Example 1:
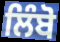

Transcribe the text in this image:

ਲਿੰਬੋ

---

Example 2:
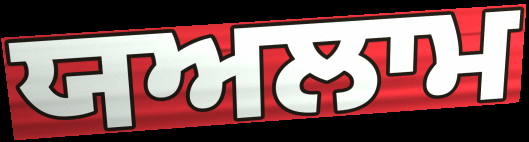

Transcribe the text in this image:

ਯਅਲਾਮ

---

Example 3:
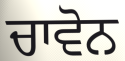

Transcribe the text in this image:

ਚਾਵੋਨ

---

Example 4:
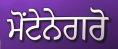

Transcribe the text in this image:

ਮੋਂਟੇਨੇਗਰੋ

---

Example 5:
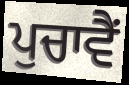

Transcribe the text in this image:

ਪੁਚਾਵੈਂ